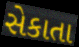
સેકાતા